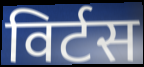
विर्टस